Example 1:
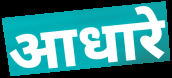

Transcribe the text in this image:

आधारे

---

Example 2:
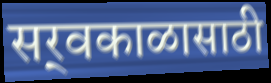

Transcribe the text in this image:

सर्वकाळासाठी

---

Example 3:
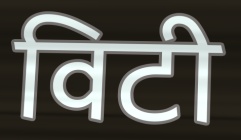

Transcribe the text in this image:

विटी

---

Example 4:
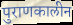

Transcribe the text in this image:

पुराणकालीन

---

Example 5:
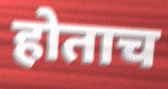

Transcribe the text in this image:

होताच